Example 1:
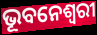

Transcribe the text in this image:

ଭୂବନେଶ୍ୱରୀ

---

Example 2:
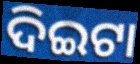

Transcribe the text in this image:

ଦିଇଟା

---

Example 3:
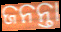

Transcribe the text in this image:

ଜନନ୍ତା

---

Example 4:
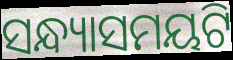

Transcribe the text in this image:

ସନ୍ଧ୍ୟାସମୟଟି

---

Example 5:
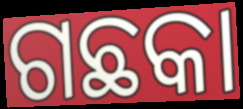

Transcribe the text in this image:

ଗଛକା